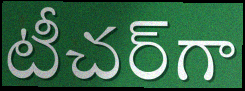
టీచర్‌గా